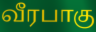
வீரபாகு